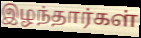
இழந்தார்கள்